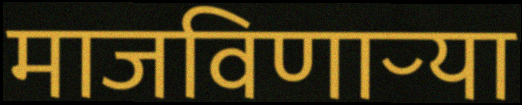
माजविणाऱ्या